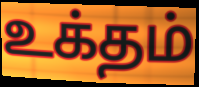
உக்தம்